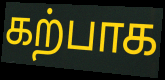
கற்பாக